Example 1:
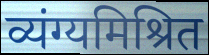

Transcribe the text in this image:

व्यंग्यमिश्रित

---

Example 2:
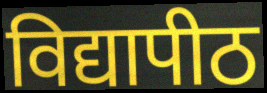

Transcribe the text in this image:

विद्यापीठ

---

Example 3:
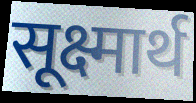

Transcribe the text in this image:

सूक्ष्मार्थ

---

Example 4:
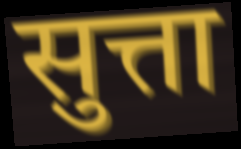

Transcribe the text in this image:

सुत्ता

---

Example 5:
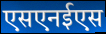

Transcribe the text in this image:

एसएनईएस